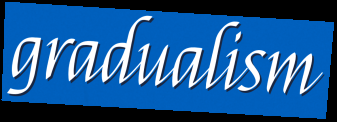
gradualism